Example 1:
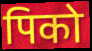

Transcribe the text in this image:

पिको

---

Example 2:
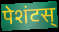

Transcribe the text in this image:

पेशंटस्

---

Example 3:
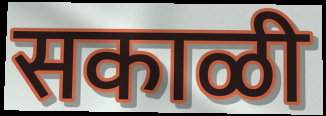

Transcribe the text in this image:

सकाळी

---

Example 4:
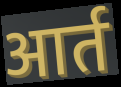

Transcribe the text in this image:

आर्त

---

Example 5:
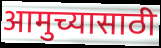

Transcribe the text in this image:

आमुच्यासाठी